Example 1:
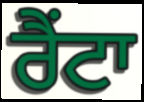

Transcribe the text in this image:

ਰੈਂਟਾ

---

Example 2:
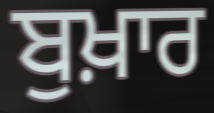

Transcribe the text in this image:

ਬੁਖ਼ਾਰ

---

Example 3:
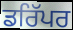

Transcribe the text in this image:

ਡਰਿੱਪਰ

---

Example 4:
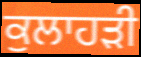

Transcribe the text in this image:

ਕੁਲਾਹੜੀ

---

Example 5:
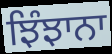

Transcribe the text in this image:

ਝਿੰਝਾਨਾ